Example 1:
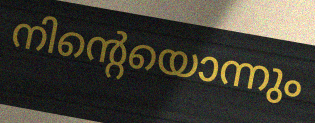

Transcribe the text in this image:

നിന്റെയൊന്നും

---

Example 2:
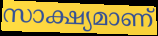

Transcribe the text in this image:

സാക്ഷ്യമാണ്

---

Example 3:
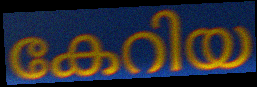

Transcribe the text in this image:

കേറിയ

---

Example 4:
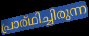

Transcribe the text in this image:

പ്രാര്ഥിച്ചിരുന്ന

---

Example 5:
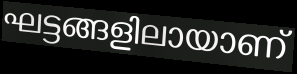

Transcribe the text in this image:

ഘട്ടങ്ങളിലായാണ്